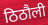
ठिठौली